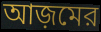
আজ়মের